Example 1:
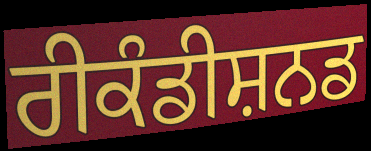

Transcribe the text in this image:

ਰੀਕੰਡੀਸ਼ਨਡ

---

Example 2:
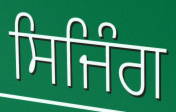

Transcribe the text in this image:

ਸਿਜਿੰਗ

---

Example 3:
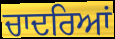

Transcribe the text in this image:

ਚਾਦਰਿਆਂ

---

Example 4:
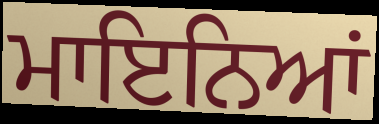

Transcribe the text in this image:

ਮਾਇਨਿਆਂ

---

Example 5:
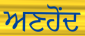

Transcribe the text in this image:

ਅਣਹੋਂਦ